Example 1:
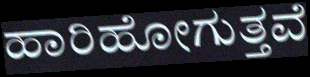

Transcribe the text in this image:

ಹಾರಿಹೋಗುತ್ತವೆ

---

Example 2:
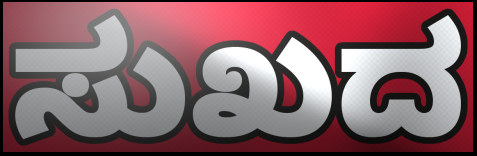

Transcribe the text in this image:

ಸುಖದ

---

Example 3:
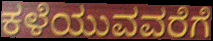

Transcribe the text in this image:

ಕಳೆಯುವವರೆಗೆ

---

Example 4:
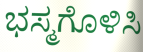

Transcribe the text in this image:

ಭಸ್ಮಗೊಳಿಸಿ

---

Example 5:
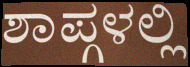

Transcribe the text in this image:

ಶಾಪ್ಗಳಲ್ಲಿ